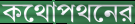
কথোপথনের